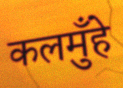
कलमुँहे